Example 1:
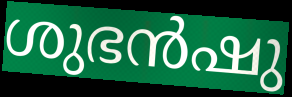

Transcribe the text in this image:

ശുഭൻഷു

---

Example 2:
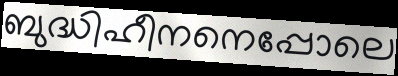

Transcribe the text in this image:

ബുദ്ധിഹീനനെപ്പോലെ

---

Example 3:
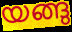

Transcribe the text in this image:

യങ്ങു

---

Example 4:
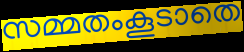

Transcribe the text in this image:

സമ്മതംകൂടാതെ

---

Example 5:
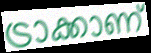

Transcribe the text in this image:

ട്രാക്കാണ്